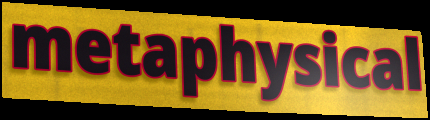
metaphysical